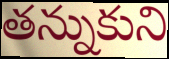
తన్నుకుని